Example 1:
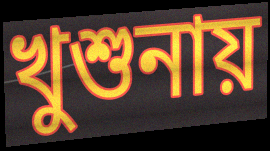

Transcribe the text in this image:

খুশুনায়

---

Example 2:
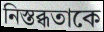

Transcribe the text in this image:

নিস্তব্ধতাকে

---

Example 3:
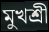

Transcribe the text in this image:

মুখশ্রী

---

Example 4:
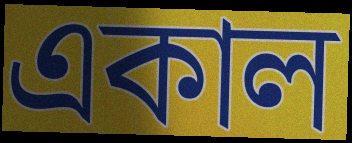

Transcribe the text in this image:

একাল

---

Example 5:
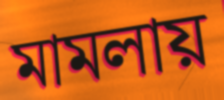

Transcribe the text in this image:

মামলায়